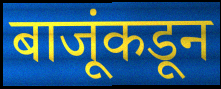
बाजूंकडून